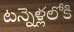
టన్నెళ్లలోకి